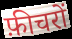
फ़ीचरों